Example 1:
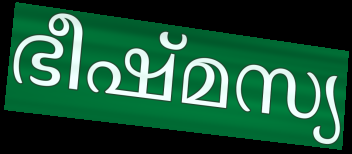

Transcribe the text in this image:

ഭീഷ്മസ്യ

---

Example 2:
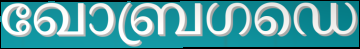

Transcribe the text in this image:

ഖോബ്രഗഡെ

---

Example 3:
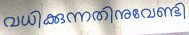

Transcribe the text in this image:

വധിക്കുന്നതിനുവേണ്ടി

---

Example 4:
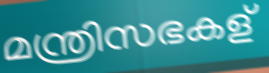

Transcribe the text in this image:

മന്ത്രിസഭകള്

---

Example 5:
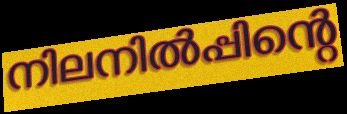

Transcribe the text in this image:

നിലനിൽപ്പിന്റെ